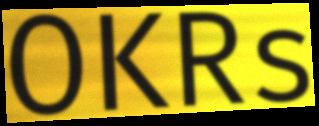
OKRs